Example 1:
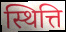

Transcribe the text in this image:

स्थित्ति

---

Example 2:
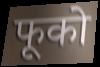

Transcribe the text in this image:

फूको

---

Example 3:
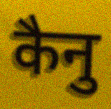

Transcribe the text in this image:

कैनु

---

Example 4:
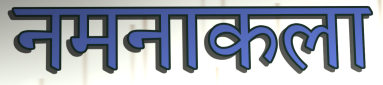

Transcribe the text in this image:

नमनाकला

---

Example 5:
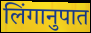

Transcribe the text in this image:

लिंगानुपात